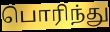
பொரிந்து